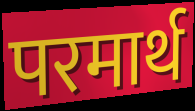
परमार्थ